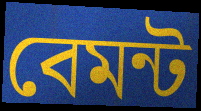
বেমন্ট